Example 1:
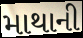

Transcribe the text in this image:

માથાની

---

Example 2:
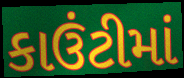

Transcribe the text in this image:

કાઉંટીમાં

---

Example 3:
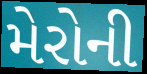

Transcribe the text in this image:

મેરોની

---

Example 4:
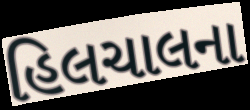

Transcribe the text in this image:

હિલચાલના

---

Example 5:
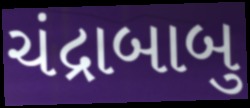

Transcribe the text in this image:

ચંદ્રાબાબુ